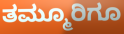
ತಮ್ಮೂರಿಗೂ